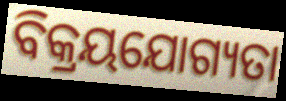
ବିକ୍ରୟଯୋଗ୍ୟତା